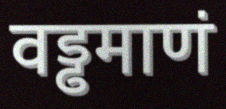
वड्ढमाणं